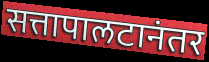
सत्तापालटानंतर